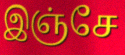
இஞ்சே